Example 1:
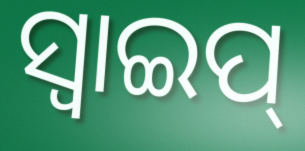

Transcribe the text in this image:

ସ୍ୱାଇପ୍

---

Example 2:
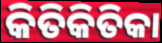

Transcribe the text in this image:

କିତିକିତିକା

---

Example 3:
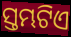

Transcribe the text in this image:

ସ୍ତମ୍ଭଟିଏ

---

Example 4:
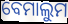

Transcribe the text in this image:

ବେମାଲୁମ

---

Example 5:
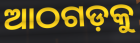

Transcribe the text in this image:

ଆଠଗଡ଼କୁ